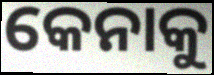
କେନାକୁ